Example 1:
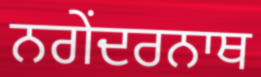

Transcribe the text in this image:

ਨਗੇਂਦਰਨਾਥ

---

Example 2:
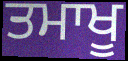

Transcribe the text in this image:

ਤਮਾਖੂ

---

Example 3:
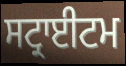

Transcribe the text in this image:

ਸਟ੍ਰਾਈਟਮ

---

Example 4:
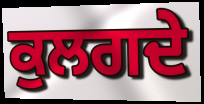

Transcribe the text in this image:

ਕੁਲਗਦੇ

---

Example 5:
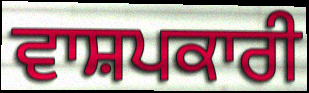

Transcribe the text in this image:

ਵਾਸ਼ਪਕਾਰੀ